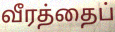
வீரத்தைப்